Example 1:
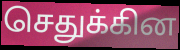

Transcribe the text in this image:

செதுக்கின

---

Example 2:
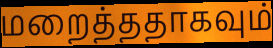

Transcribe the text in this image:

மறைத்ததாகவும்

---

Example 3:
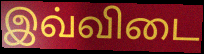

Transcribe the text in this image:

இவ்விடை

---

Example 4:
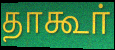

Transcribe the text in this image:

தாகூர்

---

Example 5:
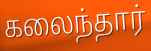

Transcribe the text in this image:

கலைந்தார்